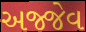
અજ્જેવ